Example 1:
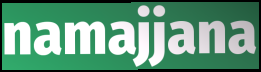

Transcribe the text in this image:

namajjana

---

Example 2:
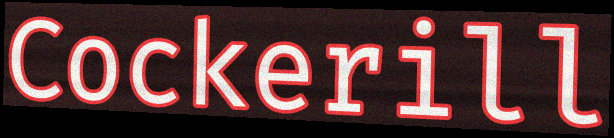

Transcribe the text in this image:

Cockerill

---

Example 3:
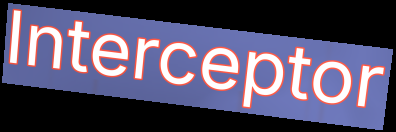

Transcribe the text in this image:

Interceptor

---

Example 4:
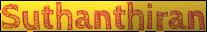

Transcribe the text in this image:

Suthanthiran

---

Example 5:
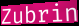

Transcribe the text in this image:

Zubrin